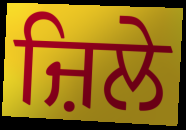
ਜ਼ਿਲੇ